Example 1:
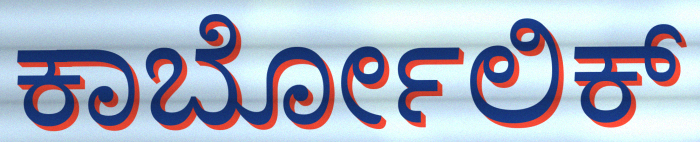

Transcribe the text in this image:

ಕಾರ್ಬೋಲಿಕ್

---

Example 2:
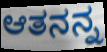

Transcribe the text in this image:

ಆತನನ್ನ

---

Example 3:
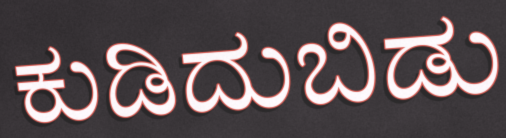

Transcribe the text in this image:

ಕುಡಿದುಬಿಡು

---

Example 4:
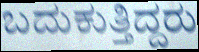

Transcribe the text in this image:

ಬದುಕುತ್ತಿದ್ದರು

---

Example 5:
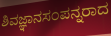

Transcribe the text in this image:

ಶಿವಜ್ಞಾನಸಂಪನ್ನರಾದ